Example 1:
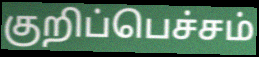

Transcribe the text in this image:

குறிப்பெச்சம்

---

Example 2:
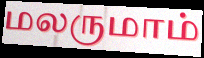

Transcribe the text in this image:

மலருமாம்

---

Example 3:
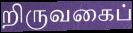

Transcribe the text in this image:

றிருவகைப்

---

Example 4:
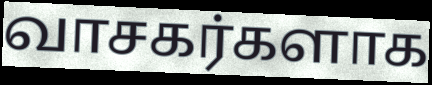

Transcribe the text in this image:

வாசகர்களாக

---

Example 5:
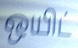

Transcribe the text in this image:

ஒயிட்